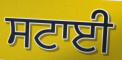
ਸਟਾਈ